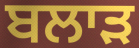
ਬਲਾੜ